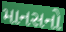
માનસનો